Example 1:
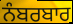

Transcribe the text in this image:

ਨੰਬਰਬਾਰ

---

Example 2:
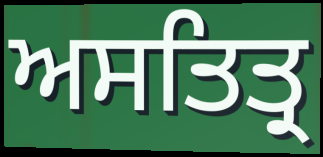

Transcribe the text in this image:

ਅਸਤਿਤ੍ਰ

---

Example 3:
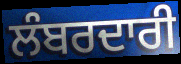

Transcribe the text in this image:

ਲੰਬਰਦਾਰੀ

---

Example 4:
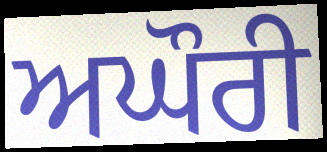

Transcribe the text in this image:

ਅਘੌਰੀ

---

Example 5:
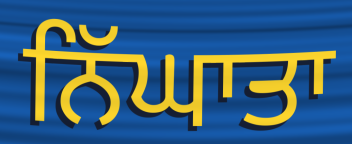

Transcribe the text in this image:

ਨਿੱਘਾਤਾ